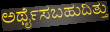
ಅರ್ಥೈಸಬಹುದಿತ್ತು